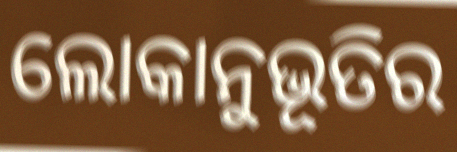
ଲୋକାନୁଭୂତିର